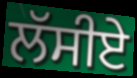
ਲੱਸੀਏ